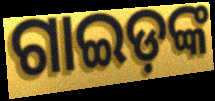
ଗାଇଡ଼ଙ୍କ